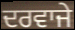
ਦਰਵਾਜੇ